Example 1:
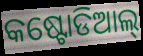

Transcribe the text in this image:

କଷ୍ଟୋଡିଆଲ୍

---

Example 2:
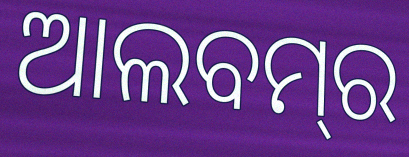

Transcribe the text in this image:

ଆଲବମ୍‌ର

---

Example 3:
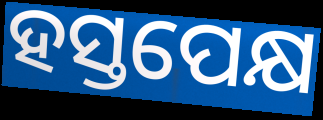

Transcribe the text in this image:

ହସ୍ତପେକ୍ଷ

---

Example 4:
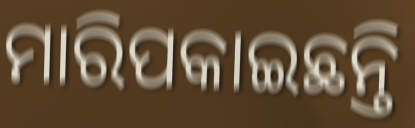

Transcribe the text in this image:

ମାରିପକାଇଛନ୍ତି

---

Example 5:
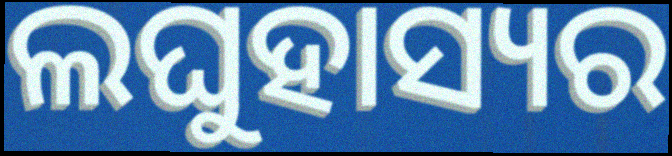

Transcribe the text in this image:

ଲଘୁହାସ୍ୟର